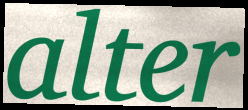
alter